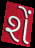
શેં